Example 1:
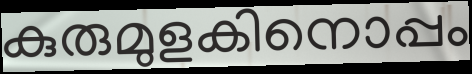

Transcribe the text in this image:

കുരുമുളകിനൊപ്പം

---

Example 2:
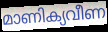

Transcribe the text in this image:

മാണിക്യവീണ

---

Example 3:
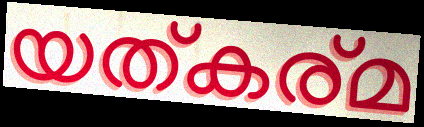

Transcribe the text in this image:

യത്കര്മ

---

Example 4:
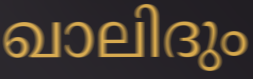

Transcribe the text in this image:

ഖാലിദും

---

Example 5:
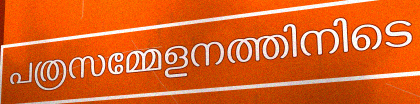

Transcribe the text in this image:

പത്രസമ്മേളനത്തിനിടെ